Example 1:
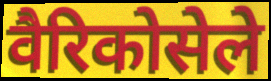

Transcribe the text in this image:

वैरिकोसेले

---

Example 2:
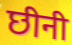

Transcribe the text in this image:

छीनी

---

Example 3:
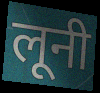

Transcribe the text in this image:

लूनी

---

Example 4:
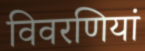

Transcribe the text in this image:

विवरणियां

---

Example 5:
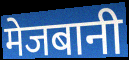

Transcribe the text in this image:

मेजबानी